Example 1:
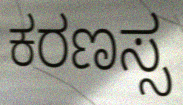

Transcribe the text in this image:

ಕರಣಸ್ಸ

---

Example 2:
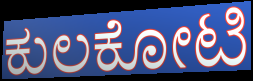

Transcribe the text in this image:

ಕುಲಕೋಟಿ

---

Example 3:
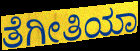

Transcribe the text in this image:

ತೆಗೀತಿಯಾ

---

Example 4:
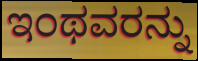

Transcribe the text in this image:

ಇಂಥವರನ್ನು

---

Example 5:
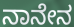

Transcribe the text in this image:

ನಾನೇನ